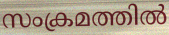
സംക്രമത്തിൽ